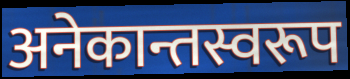
अनेकान्तस्वरूप